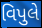
વિપુલે